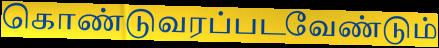
கொண்டுவரப்படவேண்டும்